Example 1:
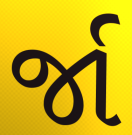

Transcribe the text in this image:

ર્જા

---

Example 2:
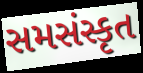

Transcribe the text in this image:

સમસંસ્કૃત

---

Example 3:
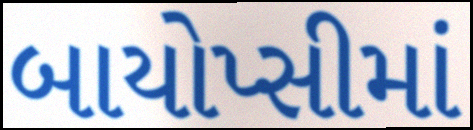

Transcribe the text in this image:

બાયોપ્સીમાં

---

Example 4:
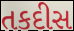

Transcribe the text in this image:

તકદીસ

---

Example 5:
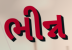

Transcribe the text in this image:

ભીન્ન